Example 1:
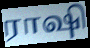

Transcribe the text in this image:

ராஷி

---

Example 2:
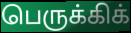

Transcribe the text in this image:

பெருக்கிக்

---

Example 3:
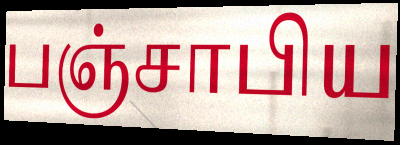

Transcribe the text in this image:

பஞ்சாபிய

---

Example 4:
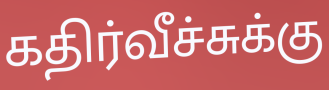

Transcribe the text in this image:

கதிர்வீச்சுக்கு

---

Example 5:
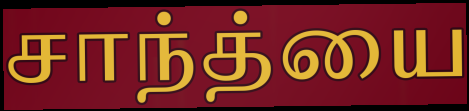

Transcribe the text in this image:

சாந்த்யை